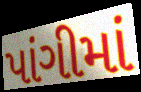
પાંગીમાં